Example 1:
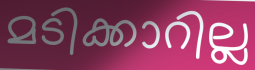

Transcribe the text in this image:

മടിക്കാറില്ല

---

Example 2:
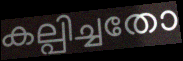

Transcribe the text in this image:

കല്പിച്ചതോ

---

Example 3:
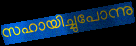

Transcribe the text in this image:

സഹായിച്ചുപോന്നു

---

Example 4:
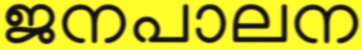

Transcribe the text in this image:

ജനപാലന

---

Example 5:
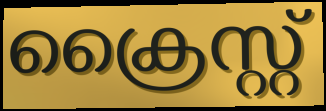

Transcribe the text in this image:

ക്രൈസ്റ്റ്